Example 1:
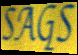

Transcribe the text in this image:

SAGS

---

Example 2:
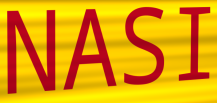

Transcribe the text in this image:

NASI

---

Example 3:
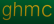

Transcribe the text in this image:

ghmc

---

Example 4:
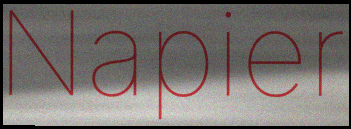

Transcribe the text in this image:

Napier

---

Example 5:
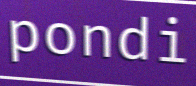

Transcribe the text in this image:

pondi